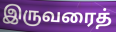
இருவரைத்